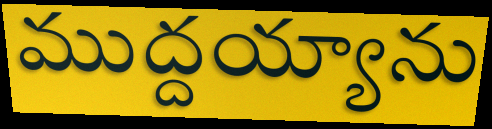
ముద్దయ్యాను